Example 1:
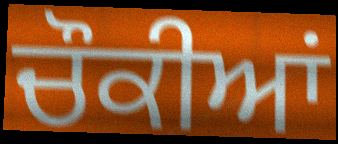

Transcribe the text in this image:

ਚੌਕੀਆਂ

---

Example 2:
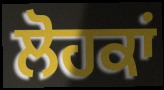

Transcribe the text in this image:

ਲੋਹਕਾਂ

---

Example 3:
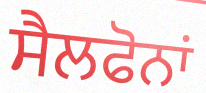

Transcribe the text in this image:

ਸੈਲਫੋਨਾਂ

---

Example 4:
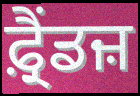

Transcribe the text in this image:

ਫ਼੍ਰੈਂਡਜ਼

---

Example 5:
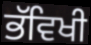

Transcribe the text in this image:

ਭੱਵਿਖੀ